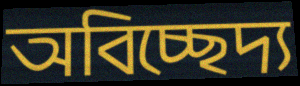
অবিচ্ছেদ্য